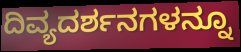
ದಿವ್ಯದರ್ಶನಗಳನ್ನೂ